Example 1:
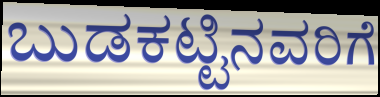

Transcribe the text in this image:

ಬುಡಕಟ್ಟಿನವರಿಗೆ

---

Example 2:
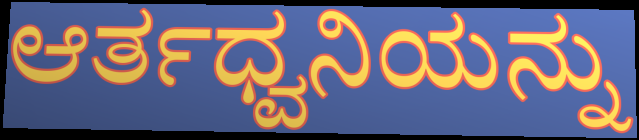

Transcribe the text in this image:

ಆರ್ತಧ್ವನಿಯನ್ನು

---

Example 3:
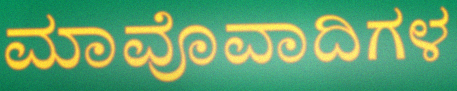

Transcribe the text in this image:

ಮಾವೊವಾದಿಗಳ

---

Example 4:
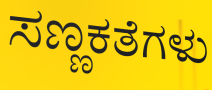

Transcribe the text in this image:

ಸಣ್ಣಕತೆಗಳು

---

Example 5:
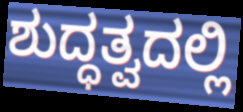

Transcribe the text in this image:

ಶುದ್ಧತ್ವದಲ್ಲಿ